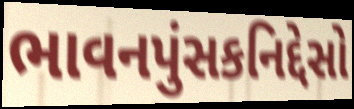
ભાવનપુંસકનિદ્દેસો